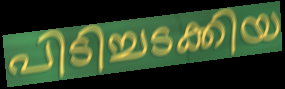
പിടിച്ചടക്കിയ